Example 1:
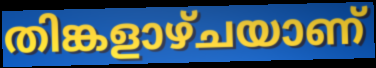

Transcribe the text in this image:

തിങ്കളാഴ്ചയാണ്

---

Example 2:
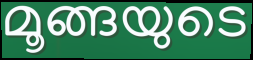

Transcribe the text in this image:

മൂങ്ങയുടെ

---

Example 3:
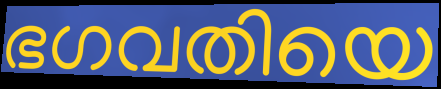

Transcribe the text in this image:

ഭഗവതിയെ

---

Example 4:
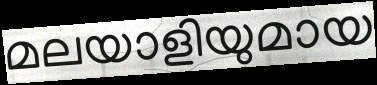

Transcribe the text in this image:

മലയാളിയുമായ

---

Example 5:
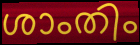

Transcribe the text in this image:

ശാംതിം